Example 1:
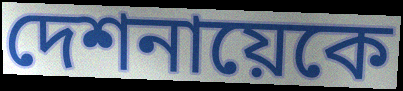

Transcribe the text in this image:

দেশনায়েকে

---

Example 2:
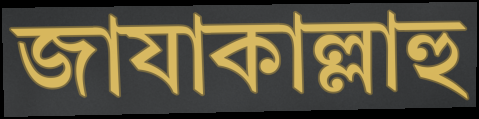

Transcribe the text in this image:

জাযাকাল্লাহু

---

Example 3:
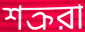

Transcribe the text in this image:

শক্ররা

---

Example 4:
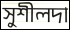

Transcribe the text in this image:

সুশীলদা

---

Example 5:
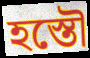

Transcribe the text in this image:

হস্তৌ